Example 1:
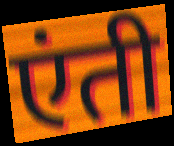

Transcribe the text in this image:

एंती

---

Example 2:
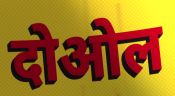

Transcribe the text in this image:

दोओल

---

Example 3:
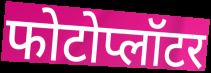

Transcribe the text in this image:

फोटोप्लॉटर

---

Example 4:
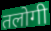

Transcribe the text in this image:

तलोगी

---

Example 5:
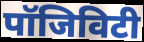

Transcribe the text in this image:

पॉजिविटी